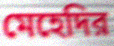
মেহেদির